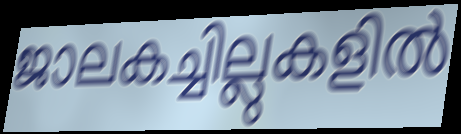
ജാലകച്ചില്ലുകളിൽ